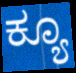
ಕ್ಯೂ